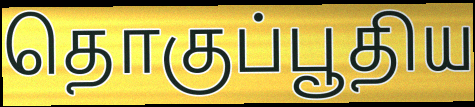
தொகுப்பூதிய